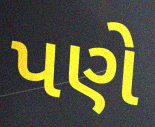
પણે